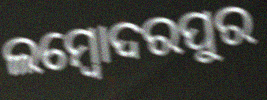
ଲମ୍ବୋଦରପୁର